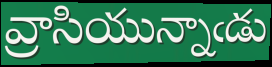
వ్రాసియున్నాఁడు